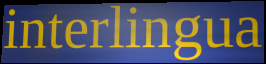
interlingua